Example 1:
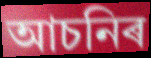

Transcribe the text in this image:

আচনিৰ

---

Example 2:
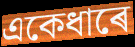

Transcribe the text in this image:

একেধাৰে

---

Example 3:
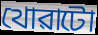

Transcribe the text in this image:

থোৱাটো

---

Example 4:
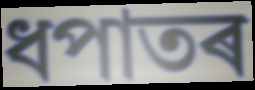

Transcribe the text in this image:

ধপাতৰ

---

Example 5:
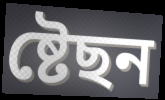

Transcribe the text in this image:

ষ্টেছন